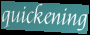
quickening